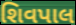
શિવપાલ